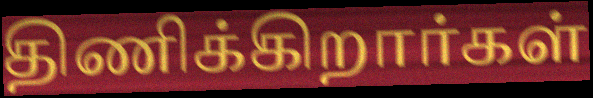
திணிக்கிறார்கள்